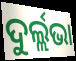
ଦୁର୍ଲ୍ଲଭା